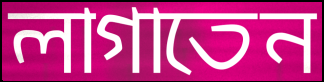
লাগাতেন